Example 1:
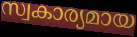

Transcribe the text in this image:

സ്വകാര്യമായ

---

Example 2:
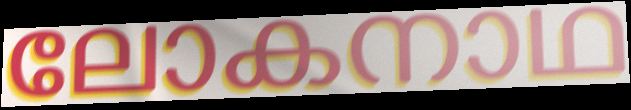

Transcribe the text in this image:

ലോകനാഥ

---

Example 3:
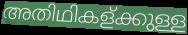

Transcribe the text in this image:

അതിഥികള്ക്കുള്ള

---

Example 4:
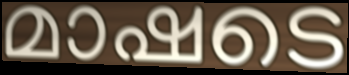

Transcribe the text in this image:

മാഷടെ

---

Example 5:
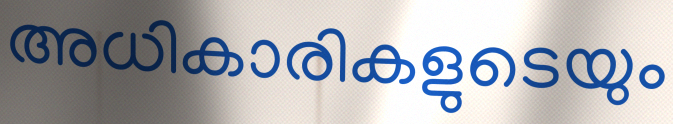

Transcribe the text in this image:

അധികാരികളുടെയും